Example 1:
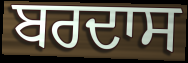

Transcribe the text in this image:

ਬਰਦਾਸ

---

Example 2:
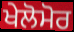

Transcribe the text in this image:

ਖੇਲੋਮੋਰ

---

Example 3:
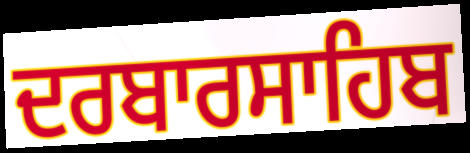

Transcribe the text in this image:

ਦਰਬਾਰਸਾਹਿਬ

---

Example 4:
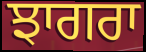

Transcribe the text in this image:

ਝਾਗਰਾ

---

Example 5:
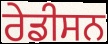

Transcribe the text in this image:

ਰੇਡੀਸਨ